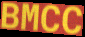
BMCC